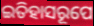
ଇତିହାସରୂପେ